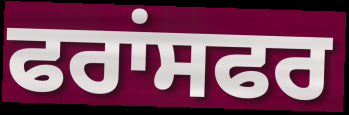
ਫਰਾਂਸਫਰ